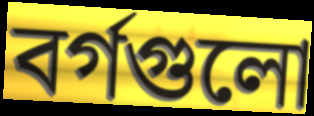
বর্গগুলো